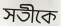
সতীকে